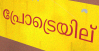
പ്രോട്രെയില്